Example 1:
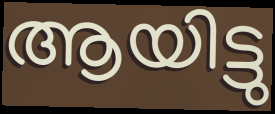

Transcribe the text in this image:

ആയിട്ടു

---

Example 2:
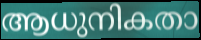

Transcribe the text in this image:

ആധുനികതാ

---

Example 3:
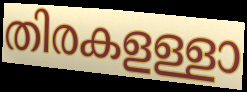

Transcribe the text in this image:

തിരകളള്ളാ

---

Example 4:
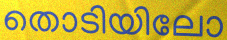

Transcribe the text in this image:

തൊടിയിലോ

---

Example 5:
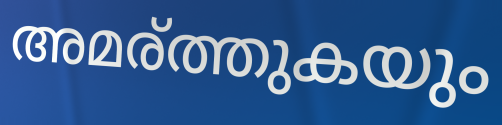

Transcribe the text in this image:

അമര്ത്തുകയും